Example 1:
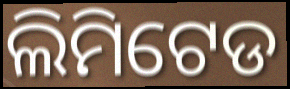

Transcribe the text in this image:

ଲିମିଟେଡ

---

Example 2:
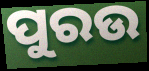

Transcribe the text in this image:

ପୁରଉ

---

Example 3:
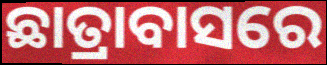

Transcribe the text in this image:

ଛାତ୍ରାବାସରେ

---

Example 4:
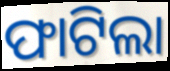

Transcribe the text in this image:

ଫାଟିଲା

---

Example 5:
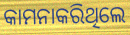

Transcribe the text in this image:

କାମନାକରିଥିଲେ